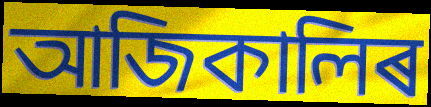
আজিকালিৰ